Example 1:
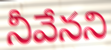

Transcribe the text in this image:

నీవేనని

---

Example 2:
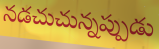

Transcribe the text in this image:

నడచుచున్నప్పుడు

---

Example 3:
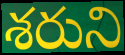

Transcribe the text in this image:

శరుని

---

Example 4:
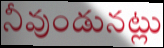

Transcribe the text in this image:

నీవుండునట్లు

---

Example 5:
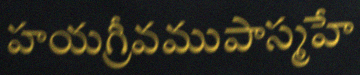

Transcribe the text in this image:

హయగ్రీవముపాస్మహే